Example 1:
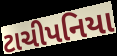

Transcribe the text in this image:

ટાચીપનિયા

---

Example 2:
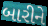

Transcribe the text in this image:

બારીને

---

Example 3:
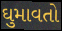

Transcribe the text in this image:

ઘુમાવતો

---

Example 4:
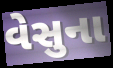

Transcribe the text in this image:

વેસુના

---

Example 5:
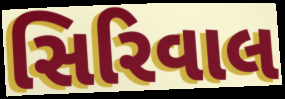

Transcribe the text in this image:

સિરિવાલ